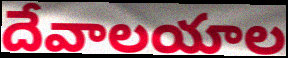
దేవాలయాల